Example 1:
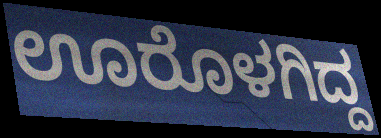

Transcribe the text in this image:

ಊರೊಳಗಿದ್ದ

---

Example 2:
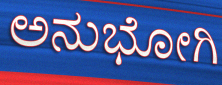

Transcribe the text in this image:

ಅನುಭೋಗಿ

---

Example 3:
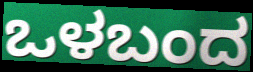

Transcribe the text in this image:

ಒಳಬಂದ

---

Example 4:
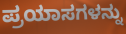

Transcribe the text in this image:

ಪ್ರಯಾಸಗಳನ್ನು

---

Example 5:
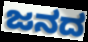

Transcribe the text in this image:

ಜನದ